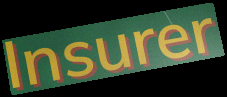
Insurer